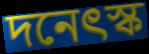
দনেৎস্ক